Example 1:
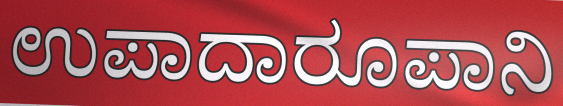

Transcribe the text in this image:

ಉಪಾದಾರೂಪಾನಿ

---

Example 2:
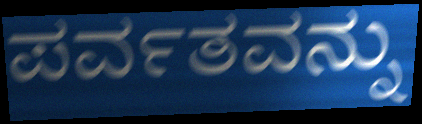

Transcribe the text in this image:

ಪರ್ವತವನ್ನು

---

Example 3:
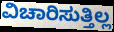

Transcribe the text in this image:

ವಿಚಾರಿಸುತ್ತಿಲ್ಲ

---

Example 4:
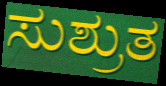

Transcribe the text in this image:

ಸುಶ್ರುತ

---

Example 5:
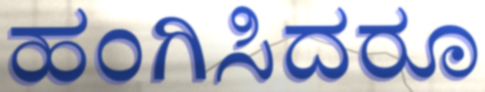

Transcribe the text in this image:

ಹಂಗಿಸಿದರೂ